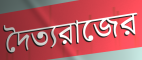
দৈত্যরাজের